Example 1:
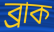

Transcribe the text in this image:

ব্রাক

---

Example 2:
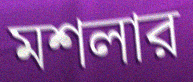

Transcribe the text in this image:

মশলার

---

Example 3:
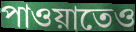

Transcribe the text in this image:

পাওয়াতেও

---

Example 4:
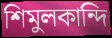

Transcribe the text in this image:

শিমুলকান্দি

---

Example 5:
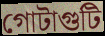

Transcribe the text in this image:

গোটাগুটি